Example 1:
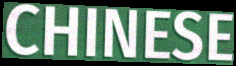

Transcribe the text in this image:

CHINESE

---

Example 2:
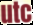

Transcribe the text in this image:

utc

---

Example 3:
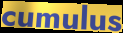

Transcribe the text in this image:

cumulus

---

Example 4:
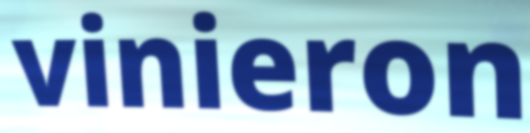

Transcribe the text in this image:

vinieron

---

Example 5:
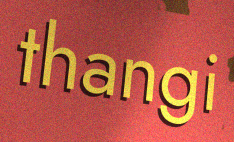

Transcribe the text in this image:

thangi